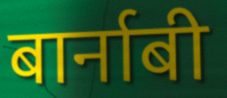
बार्नाबी